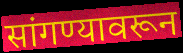
सांगण्यावरून